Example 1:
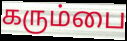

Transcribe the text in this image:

கரும்பை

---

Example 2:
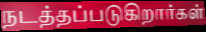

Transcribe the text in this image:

நடத்தப்படுகிறார்கள்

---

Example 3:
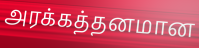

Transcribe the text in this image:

அரக்கத்தனமான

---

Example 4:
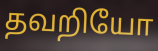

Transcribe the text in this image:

தவறியோ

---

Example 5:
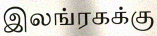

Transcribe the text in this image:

இலங்ரகக்கு